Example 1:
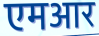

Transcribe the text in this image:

एमआर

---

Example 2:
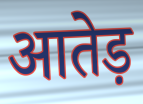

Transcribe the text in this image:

आतेड़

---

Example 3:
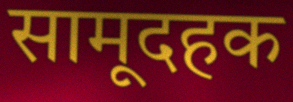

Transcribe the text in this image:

सामूदहक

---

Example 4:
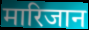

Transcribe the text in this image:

मारिजान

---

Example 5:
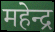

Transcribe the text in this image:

महेन्द्र